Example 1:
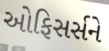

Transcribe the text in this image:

ઓફિસર્સને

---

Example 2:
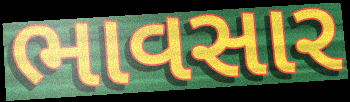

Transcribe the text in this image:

ભાવસાર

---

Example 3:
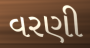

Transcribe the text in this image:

વરણી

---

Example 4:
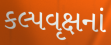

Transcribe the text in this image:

કલ્પવૃક્ષનાં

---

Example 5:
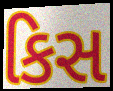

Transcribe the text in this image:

કિસ